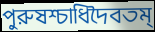
পুরুষশ্চাধিদৈবতম্